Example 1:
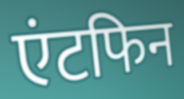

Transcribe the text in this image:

एंटफिन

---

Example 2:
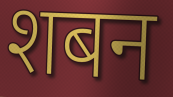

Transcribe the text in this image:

शबन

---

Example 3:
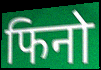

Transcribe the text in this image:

फिनो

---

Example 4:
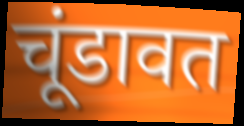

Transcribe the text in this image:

चूंडावत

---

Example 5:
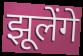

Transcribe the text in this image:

झूलेंगे